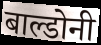
बाल्डोनी